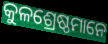
କୁଳଶ୍ରେଷ୍ଠମାନେ